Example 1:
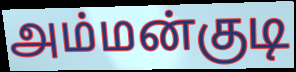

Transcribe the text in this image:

அம்மன்குடி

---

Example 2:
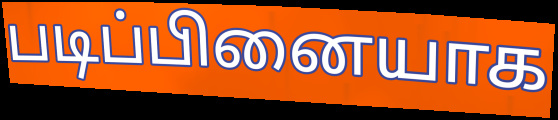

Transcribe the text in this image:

படிப்பினையாக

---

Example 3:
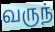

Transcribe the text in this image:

வருந்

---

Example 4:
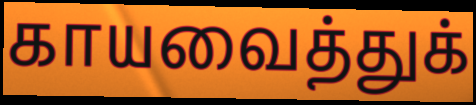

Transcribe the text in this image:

காயவைத்துக்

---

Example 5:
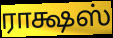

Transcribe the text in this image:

ராக்ஷஸ்